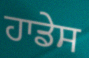
ਹਾਡੇਸ